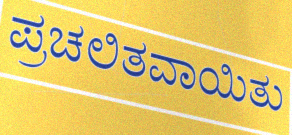
ಪ್ರಚಲಿತವಾಯಿತು